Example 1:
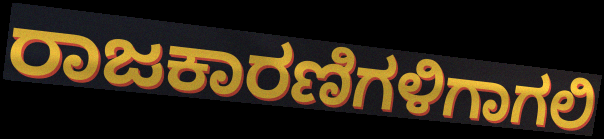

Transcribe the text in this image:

ರಾಜಕಾರಣಿಗಳಿಗಾಗಲಿ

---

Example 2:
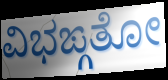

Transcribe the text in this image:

ವಿಭಙ್ಗತೋ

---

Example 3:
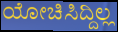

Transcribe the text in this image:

ಯೋಚಿಸಿದ್ದಿಲ್ಲ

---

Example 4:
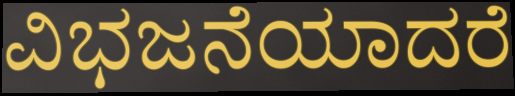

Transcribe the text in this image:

ವಿಭಜನೆಯಾದರೆ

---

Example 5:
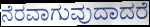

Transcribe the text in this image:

ನೆರವಾಗುವುದಾದರೆ